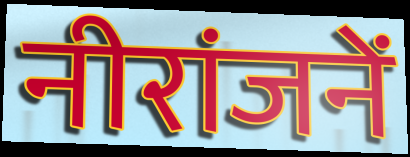
नीरांजनें